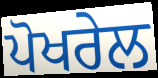
ਪੋਖਰੇਲ